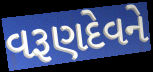
વરૂણદેવને